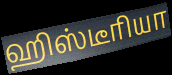
ஹிஸ்டீரியா